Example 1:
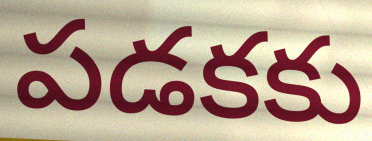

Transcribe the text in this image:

పడకకు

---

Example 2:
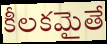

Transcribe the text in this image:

కీలకమైతే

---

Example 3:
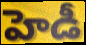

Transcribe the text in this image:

హెడీ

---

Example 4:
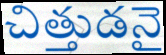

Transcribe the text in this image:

చిత్తుడనై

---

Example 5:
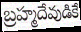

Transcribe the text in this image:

బ్రహ్మదేవుడికే